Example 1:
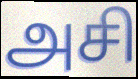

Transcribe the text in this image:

அசி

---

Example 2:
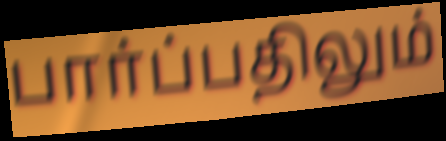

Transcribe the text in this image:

பார்ப்பதிலும்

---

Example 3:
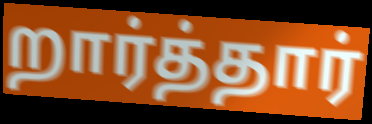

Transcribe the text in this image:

றார்த்தார்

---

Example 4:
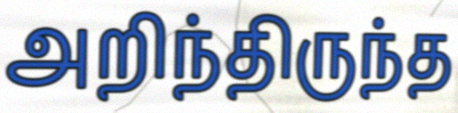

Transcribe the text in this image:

அறிந்திருந்த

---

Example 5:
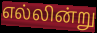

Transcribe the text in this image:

எல்லின்று